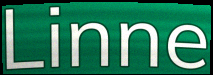
Linne